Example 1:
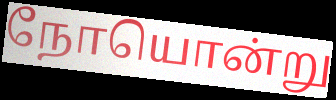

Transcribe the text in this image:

நோயொன்று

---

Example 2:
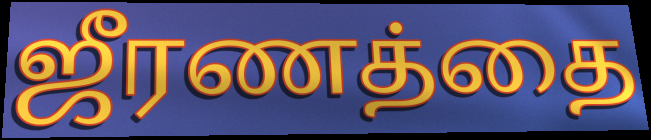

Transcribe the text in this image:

ஜீரணத்தை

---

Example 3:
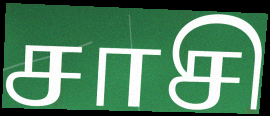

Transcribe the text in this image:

சாசி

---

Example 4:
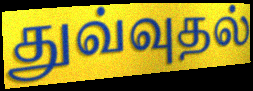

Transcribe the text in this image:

துவ்வுதல்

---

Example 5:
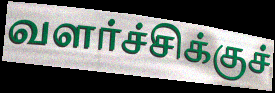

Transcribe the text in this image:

வளர்ச்சிக்குச்